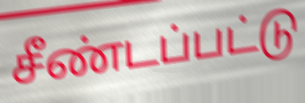
சீண்டப்பட்டு